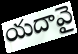
యదావై